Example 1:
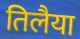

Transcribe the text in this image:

तिलैया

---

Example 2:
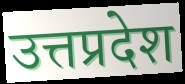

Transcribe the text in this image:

उत्तप्रदेश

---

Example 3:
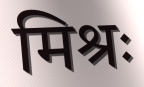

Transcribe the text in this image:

मिश्रः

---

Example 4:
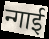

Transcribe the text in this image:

न्गाई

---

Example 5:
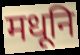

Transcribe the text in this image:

मधूनि